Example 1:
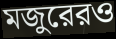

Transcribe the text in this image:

মজুরেরও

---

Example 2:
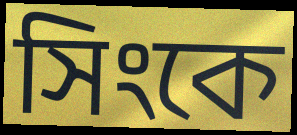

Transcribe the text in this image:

সিংকে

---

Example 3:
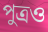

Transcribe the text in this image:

পুত্রও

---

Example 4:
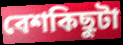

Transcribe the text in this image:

বেশকিছুটা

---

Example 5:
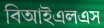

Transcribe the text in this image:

বিআইএলএস